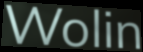
Wolin